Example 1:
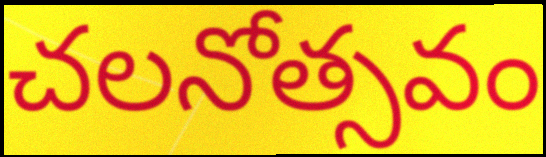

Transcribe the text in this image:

చలనోత్సవం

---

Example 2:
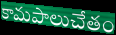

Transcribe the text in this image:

కామపాలుచేతం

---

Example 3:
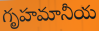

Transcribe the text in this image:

గృహమానీయ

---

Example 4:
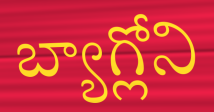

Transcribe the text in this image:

బ్యాగ్లోని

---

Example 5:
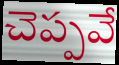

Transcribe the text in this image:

చెప్పవే